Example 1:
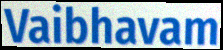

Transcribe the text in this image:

Vaibhavam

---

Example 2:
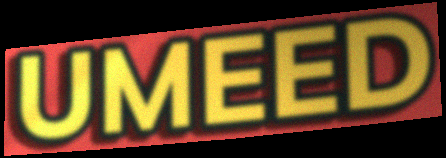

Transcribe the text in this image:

UMEED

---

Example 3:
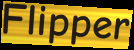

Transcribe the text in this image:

Flipper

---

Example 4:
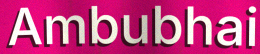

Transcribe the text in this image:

Ambubhai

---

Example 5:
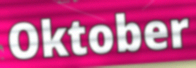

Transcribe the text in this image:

Oktober